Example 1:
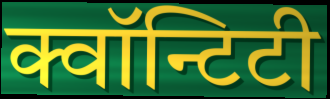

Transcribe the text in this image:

क्वॉन्टिटी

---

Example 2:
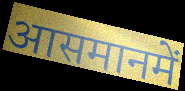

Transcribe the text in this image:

आसमानमें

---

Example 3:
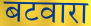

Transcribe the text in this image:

बटवारा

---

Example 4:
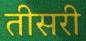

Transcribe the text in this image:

तीसरी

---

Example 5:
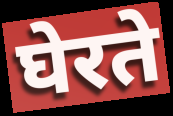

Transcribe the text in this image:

घेरते